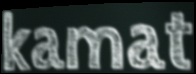
kamat